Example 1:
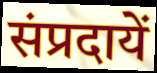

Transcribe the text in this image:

संप्रदायें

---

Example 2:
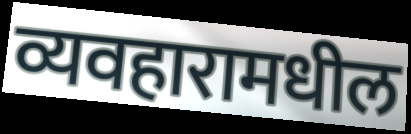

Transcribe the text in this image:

व्यवहारामधील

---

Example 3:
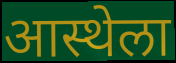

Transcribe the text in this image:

आस्थेला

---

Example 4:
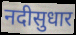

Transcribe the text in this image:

नदीसुधार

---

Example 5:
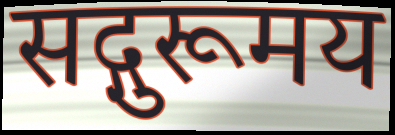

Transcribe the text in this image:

सद्गुरूमय